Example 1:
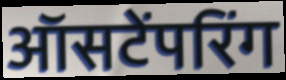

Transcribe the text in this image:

ऑसटेंपरिंग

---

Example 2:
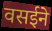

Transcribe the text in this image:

वसईने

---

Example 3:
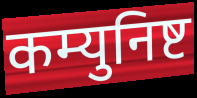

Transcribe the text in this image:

कम्युनिष्ट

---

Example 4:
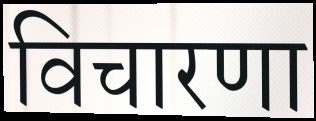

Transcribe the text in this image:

विचारणा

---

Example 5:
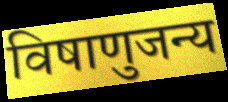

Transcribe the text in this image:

विषाणुजन्य